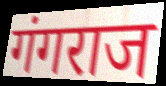
गंगराज